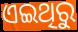
ଏଇଥିରୁ